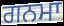
ਗਨਮਾ